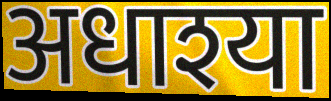
अधाश्या